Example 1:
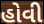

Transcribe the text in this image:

હોવી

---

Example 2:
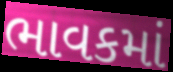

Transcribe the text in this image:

ભાવકમાં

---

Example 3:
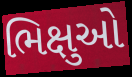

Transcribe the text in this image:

ભિક્ષુઓ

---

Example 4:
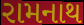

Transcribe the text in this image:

રામનાથ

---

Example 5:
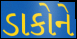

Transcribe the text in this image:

ડાકોને